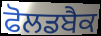
ਫੋਲਡਬੈਕ